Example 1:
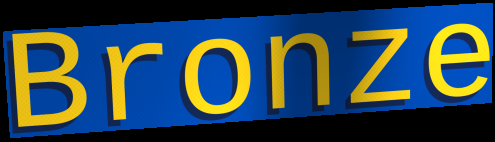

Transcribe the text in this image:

Bronze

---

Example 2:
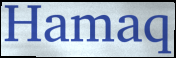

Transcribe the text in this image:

Hamaq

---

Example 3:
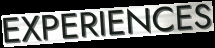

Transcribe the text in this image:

EXPERIENCES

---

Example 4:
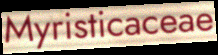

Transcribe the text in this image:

Myristicaceae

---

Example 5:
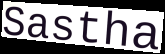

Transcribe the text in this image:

Sastha